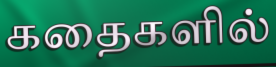
கதைகளில்